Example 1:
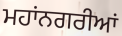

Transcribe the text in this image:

ਮਹਾਂਨਗਰੀਆਂ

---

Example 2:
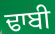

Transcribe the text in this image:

ਢਾਬੀ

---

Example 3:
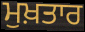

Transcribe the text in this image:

ਮੁਖ਼ਤਾਰ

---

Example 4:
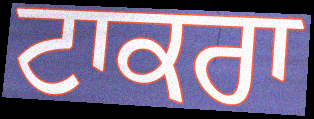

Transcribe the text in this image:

ਟਾਕਰਾ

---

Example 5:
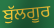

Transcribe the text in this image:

ਬੁੱਲਗੂਰ